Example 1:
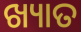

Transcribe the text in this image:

ଖ୍ୟାତ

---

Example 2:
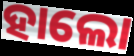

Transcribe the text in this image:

ହାଲୋ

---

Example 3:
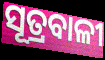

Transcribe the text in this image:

ସୂତ୍ରବାଳୀ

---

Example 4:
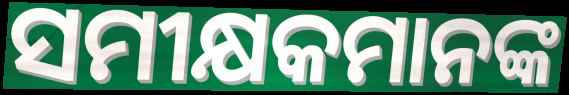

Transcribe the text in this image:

ସମୀକ୍ଷକମାନଙ୍କ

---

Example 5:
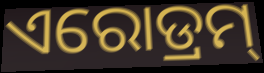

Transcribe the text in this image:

ଏରୋଡ୍ରମ୍